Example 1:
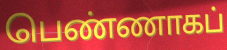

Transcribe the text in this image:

பெண்ணாகப்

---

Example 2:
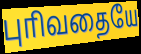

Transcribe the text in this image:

புரிவதையே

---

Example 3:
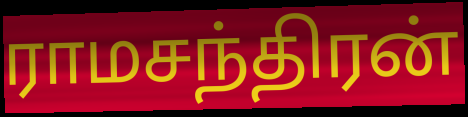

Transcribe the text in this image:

ராமசந்திரன்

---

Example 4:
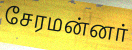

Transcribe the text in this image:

சேரமன்னர்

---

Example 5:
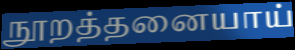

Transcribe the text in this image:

நூறத்தனையாய்